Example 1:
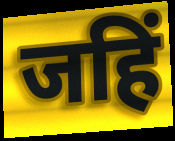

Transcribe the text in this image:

जहिं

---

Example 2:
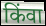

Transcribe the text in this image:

किंवा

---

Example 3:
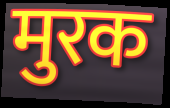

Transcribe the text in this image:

मुरक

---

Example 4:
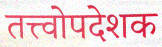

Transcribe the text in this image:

तत्त्वोपदेशक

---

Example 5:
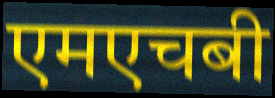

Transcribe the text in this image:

एमएचबी